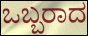
ಒಬ್ಬರಾದ